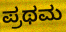
ಪ್ರಥಮ